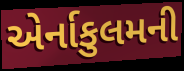
એર્નાકુલમની